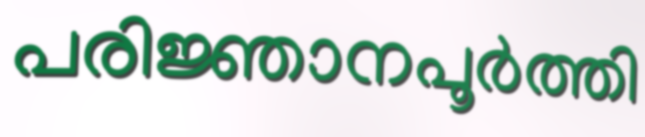
പരിജ്ഞാനപൂർത്തി